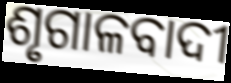
ଶୃଗାଳବାଦୀ